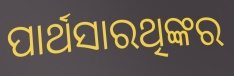
ପାର୍ଥସାରଥିଙ୍କର